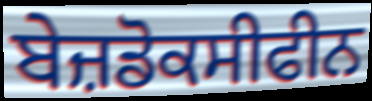
ਬੇਜ਼ਡੋਕਸੀਫੀਨ